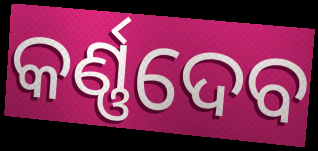
କର୍ଣ୍ଣଦେବ